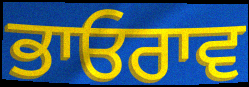
ਭਾਓਰਾਵ